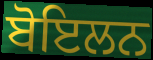
ਬੋਇਲਨ